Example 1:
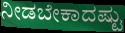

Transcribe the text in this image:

ನೀಡಬೇಕಾದಷ್ಟು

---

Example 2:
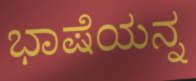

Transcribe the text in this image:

ಭಾಷೆಯನ್ನ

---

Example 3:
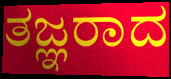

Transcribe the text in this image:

ತಜ್ಞರಾದ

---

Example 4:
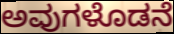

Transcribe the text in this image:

ಅವುಗಳೊಡನೆ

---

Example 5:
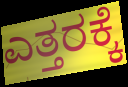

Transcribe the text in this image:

ಎತ್ತರಕ್ಕೆ